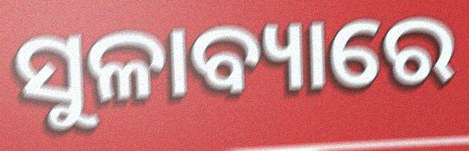
ସୁଳାବ୍ୟାରେ